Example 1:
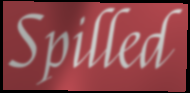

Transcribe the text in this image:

Spilled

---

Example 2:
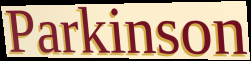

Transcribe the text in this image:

Parkinson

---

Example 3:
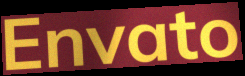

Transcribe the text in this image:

Envato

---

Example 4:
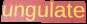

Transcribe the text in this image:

ungulate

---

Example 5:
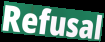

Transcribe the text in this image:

Refusal